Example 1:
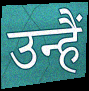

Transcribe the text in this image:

उन्‍हैं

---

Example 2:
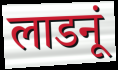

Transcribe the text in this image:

लाडनूं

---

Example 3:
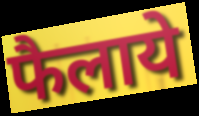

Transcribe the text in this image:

फैलाये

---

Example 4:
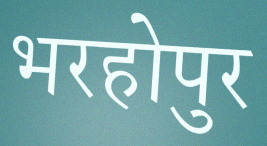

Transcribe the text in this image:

भरहोपुर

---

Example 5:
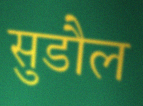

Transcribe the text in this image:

सुडौल